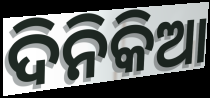
ଦିନିକିଆ